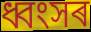
ধ্বংসৰ